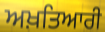
ਅਖ਼ਤਿਆਰੀ